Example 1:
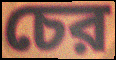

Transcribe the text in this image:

চের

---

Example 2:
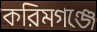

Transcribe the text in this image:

করিমগঞ্জে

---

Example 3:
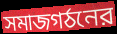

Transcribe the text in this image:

সমাজগঠনের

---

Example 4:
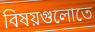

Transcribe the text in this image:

বিষয়গুলোতে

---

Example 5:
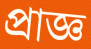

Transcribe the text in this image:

প্রাজ্ঞ